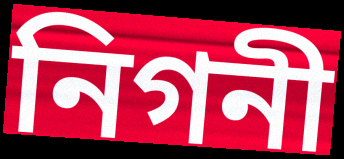
নিগনী